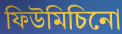
ফিউমিচিনো